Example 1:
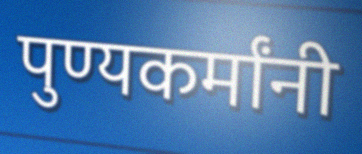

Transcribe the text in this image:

पुण्यकर्मांनी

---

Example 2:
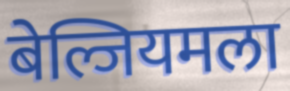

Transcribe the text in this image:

बेल्जियमला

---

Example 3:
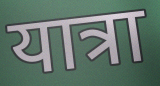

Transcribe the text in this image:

यात्रा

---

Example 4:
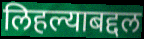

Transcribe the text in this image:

लिहल्याबद्दल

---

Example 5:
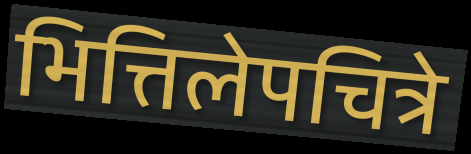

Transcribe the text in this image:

भित्तिलेपचित्रे